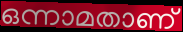
ഒന്നാമതാണ്